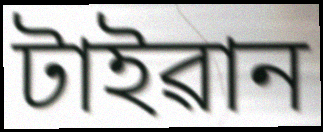
টাইৱান